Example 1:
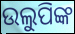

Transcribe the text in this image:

ଉଲୁପିଙ୍କ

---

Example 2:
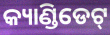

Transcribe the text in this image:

କ୍ୟାଣ୍ଡିଡେଟ୍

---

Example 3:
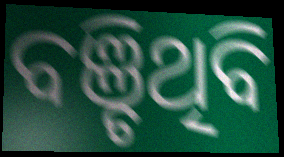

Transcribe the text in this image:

ବଞ୍ଚିଥିବି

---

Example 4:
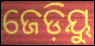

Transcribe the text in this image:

ଜେଡ଼ିୟୁ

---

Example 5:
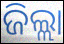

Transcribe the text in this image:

ଜିଲ୍ଲା